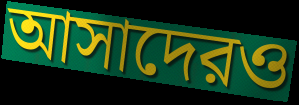
আসাদেরও